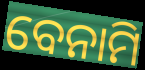
ବେନାମି